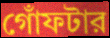
গোঁফটার